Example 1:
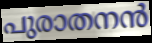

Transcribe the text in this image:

പുരാതനൻ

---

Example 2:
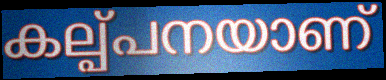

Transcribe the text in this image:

കല്പ്പനയാണ്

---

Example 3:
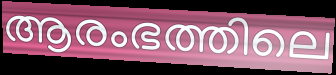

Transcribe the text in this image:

ആരംഭത്തിലെ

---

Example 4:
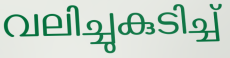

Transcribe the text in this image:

വലിച്ചുകുടിച്ച്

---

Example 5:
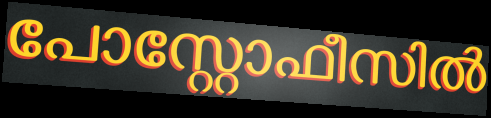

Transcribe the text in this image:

പോസ്റ്റോഫീസിൽ